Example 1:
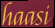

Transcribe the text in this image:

haasi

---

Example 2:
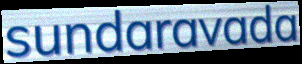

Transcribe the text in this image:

sundaravada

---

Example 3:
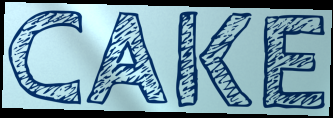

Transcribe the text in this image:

CAKE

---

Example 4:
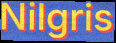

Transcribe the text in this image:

Nilgris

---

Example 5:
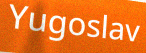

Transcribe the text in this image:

Yugoslav